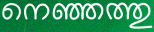
നെഞ്ഞത്തു